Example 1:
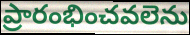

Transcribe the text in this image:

ప్రారంభించవలెను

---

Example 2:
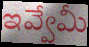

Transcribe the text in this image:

ఇవ్వేమీ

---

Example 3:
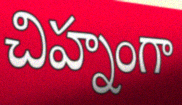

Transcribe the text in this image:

చిహ్నంగా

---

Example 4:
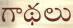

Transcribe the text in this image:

గాథలు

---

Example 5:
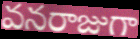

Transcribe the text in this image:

వనరాజుగా